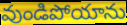
వుండిపోయాను